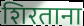
शिरताना